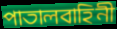
পাতালবাহিনী